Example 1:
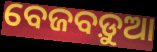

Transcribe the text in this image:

ବେଜବଡ଼ୁଆ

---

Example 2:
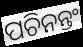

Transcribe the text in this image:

ପଚିନନ୍ତଂ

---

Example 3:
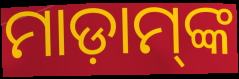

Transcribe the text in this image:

ମାଡ଼ାମ୍‌ଙ୍କ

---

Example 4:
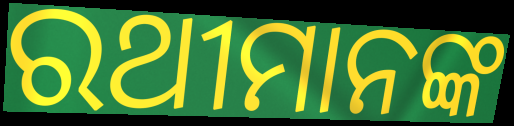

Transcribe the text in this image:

ରଥୀମାନଙ୍କ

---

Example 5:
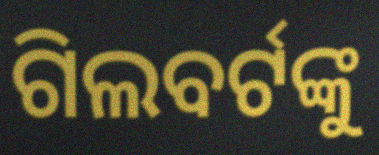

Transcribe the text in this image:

ଗିଲବର୍ଟଙ୍କୁ